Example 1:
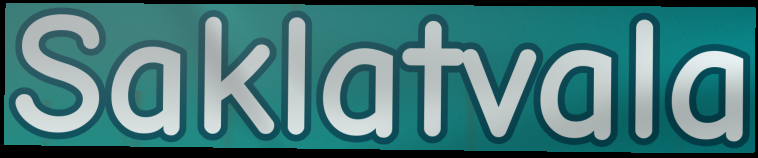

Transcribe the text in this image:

Saklatvala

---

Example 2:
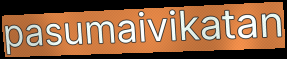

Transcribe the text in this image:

pasumaivikatan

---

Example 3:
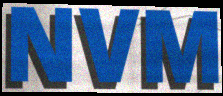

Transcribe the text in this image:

NVM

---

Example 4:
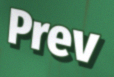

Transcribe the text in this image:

Prev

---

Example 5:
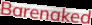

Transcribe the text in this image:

Barenaked